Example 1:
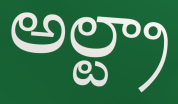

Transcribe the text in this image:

అల్ట్రా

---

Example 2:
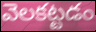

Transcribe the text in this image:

వెలకట్టడం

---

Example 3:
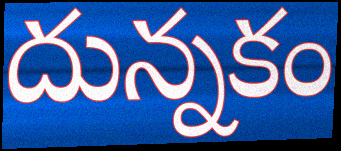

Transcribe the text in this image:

దున్నకం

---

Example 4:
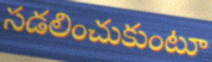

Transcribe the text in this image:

సడలించుకుంటూ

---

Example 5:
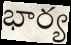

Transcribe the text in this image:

భార్య